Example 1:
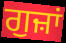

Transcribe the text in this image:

ਗੁਜ਼ਾਂ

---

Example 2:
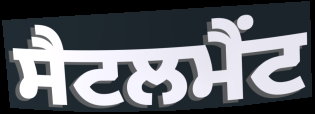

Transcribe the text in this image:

ਸੈਟਲਮੈਂਟ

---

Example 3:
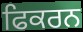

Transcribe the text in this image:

ਫਿਕਰਨ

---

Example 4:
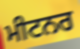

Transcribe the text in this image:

ਮੀਟਨਰ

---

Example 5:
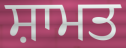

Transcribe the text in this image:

ਸ਼ਾਮਤ